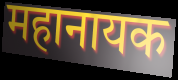
महानायक